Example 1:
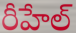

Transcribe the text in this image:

రీహేల్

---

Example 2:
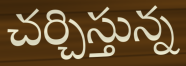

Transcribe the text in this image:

చర్చిస్తున్న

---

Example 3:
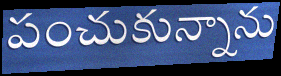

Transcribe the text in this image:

పంచుకున్నాను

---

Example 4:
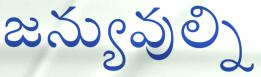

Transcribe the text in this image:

జన్యువుల్ని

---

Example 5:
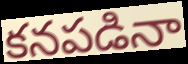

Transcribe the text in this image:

కనపడినా